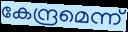
കേന്ദ്രമെന്ന്